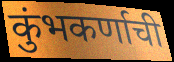
कुंभकर्णाची